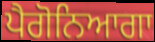
ਪੈਗੋਨਿਆਗਾ